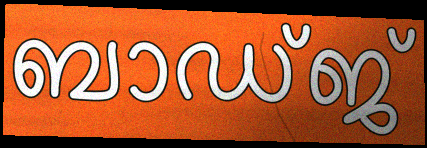
ബാഡ്ജ്